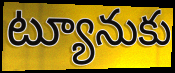
ట్యూనుకు